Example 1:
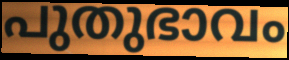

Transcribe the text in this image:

പുതുഭാവം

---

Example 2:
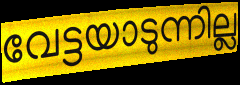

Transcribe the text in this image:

വേട്ടയാടുന്നില്ല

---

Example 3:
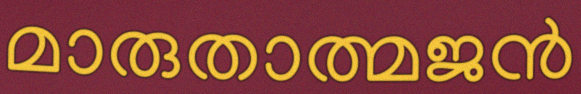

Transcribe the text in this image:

മാരുതാത്മജൻ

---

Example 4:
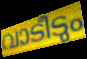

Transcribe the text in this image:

വാടീടും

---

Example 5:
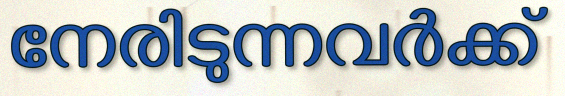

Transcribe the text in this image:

നേരിടുന്നവർക്ക്